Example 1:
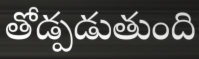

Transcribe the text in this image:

తోడ్పడుతుంది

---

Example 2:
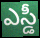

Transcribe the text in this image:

ఎస్డీ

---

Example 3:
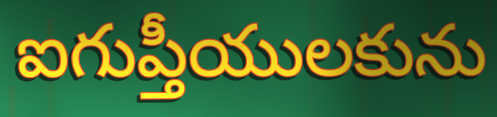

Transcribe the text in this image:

ఐగుప్తీయులకును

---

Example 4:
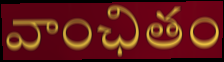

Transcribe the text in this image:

వాంఛితం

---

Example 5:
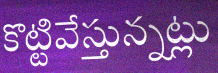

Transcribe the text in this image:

కొట్టివేస్తున్నట్లు